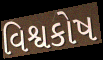
વિશ્વકોષ